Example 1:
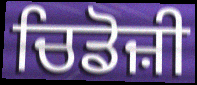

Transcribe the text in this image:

ਚਿਡੋਜ਼ੀ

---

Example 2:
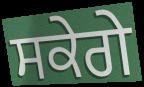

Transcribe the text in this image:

ਸਕੇਗੇ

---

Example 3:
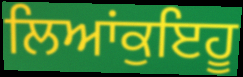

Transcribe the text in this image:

ਲਿਆਂਕੁਇਹੂ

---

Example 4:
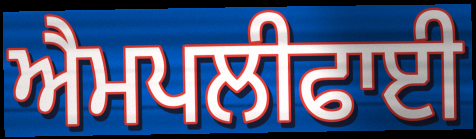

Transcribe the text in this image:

ਐਮਪਲੀਫਾਈ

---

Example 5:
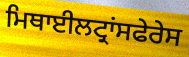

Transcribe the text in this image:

ਮਿਥਾਈਲਟ੍ਰਾਂਸਫੇਰੇਸ